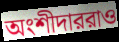
অংশীদাররাও